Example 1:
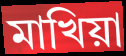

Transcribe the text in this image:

মাখিয়া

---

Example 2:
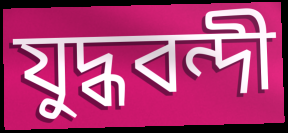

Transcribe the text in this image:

যুদ্ধবন্দী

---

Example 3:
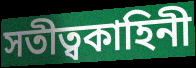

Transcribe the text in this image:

সতীত্বকাহিনী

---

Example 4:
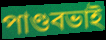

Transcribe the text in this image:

পাণ্ডবভাই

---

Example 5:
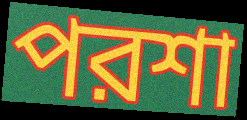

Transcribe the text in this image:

পরশা